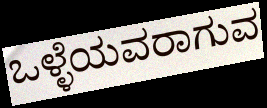
ಒಳ್ಳೆಯವರಾಗುವ